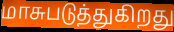
மாசுபடுத்துகிறது